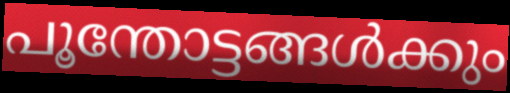
പൂന്തോട്ടങ്ങൾക്കും